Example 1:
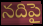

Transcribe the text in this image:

నదిపై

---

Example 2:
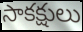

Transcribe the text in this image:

సాకక్షులు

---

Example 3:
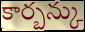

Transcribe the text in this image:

కార్బన్కు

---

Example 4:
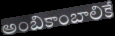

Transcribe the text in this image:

అంబికాంబాలికే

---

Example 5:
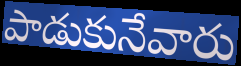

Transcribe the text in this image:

పాడుకునేవారు